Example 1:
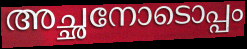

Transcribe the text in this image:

അച്ഛനോടൊപ്പം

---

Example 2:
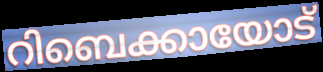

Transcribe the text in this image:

റിബെക്കായോട്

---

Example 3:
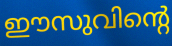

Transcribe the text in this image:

ഈസുവിന്റെ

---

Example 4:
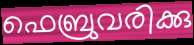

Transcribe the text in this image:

ഫെബ്രുവരിക്കു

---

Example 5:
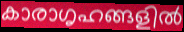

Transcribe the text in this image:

കാരാഗൃഹങ്ങളിൽ